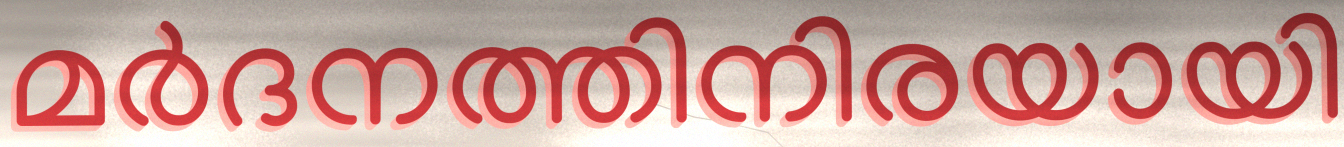
മർദനത്തിനിരയായി